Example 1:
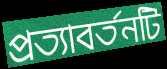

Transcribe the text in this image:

প্রত্যাবর্তনটি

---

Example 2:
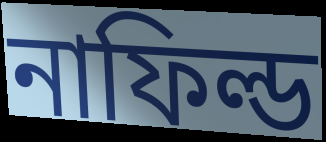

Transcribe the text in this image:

নাফিল্ড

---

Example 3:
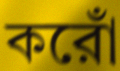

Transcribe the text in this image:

করোঁ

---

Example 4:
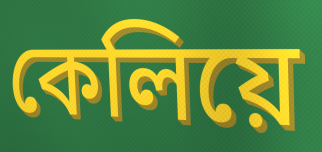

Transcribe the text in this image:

কেলিয়ে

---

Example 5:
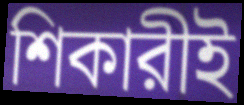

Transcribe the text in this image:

শিকারীই